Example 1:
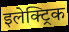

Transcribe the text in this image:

इलेक्ट्रिक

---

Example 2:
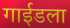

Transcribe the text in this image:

गाईडला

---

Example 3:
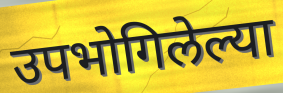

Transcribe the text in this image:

उपभोगिलेल्या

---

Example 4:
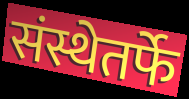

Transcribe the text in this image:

संस्थेतर्फे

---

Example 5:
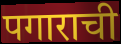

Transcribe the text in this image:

पगाराची